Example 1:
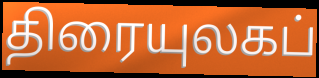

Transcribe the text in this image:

திரையுலகப்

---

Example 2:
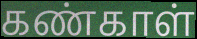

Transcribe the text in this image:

கண்காள்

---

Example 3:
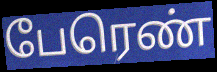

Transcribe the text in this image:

பேரெண்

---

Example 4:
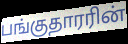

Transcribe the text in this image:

பங்குதாரரின்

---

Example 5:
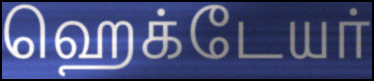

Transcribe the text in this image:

ஹெக்டேயர்